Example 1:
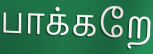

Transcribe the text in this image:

பாக்கறே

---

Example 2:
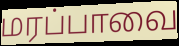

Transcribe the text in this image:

மரப்பாவை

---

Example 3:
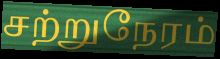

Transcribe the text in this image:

சற்றுநேரம்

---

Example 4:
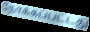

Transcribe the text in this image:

நோக்கப்பட்டது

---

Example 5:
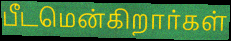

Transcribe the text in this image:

பீடமென்கிறார்கள்